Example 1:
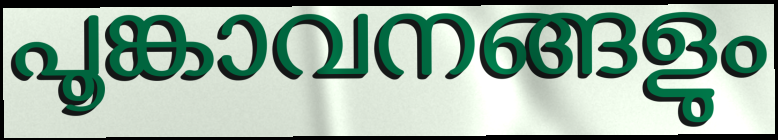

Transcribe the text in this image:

പൂങ്കാവനങ്ങളും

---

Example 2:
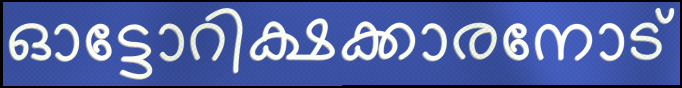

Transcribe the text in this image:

ഓട്ടോറിക്ഷക്കാരനോട്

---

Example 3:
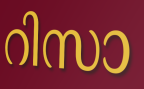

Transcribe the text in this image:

റിസാ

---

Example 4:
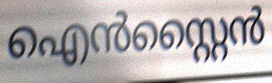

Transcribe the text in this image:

ഐൻസ്റ്റൈൻ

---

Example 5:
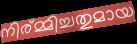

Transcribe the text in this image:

നിര്മ്മിച്ചതുമായ